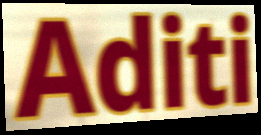
Aditi